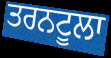
ਤਰਨਟੂਲਾ